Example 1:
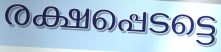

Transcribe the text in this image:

രക്ഷപ്പെടട്ടെ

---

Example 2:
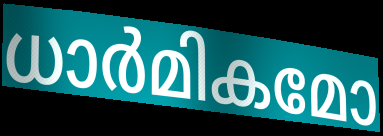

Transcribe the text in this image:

ധാർമികമോ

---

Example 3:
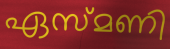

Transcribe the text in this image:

ഏസ്മണി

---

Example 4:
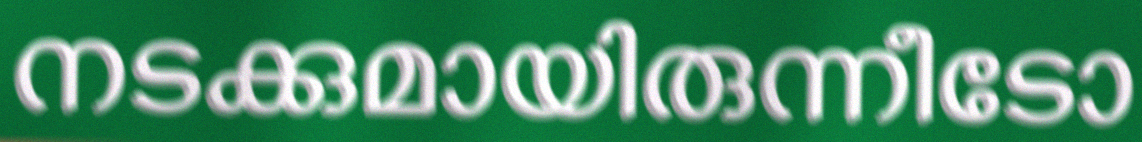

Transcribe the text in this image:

നടക്കുമായിരുന്നീടോ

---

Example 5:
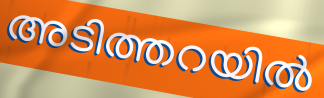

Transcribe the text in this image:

അടിത്തറയിൽ